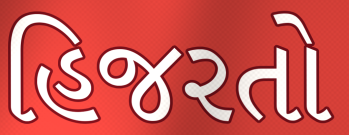
હિજરતો